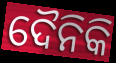
ଦୈନିକି